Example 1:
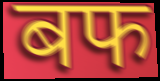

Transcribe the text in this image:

बफ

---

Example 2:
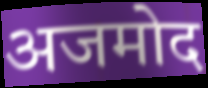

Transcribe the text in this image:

अजमोद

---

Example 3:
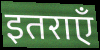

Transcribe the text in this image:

इतराएँ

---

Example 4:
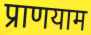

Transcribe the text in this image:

प्राणयाम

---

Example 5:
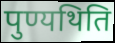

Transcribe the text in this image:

पुण्यथिति